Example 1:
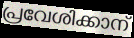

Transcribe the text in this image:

പ്രവേശിക്കാന്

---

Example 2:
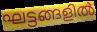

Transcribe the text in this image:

ഘട്ടങ്ങളിൽ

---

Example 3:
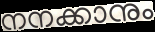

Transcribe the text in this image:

നനക്കാനും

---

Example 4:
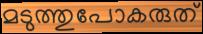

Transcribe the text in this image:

മടുത്തുപോകരുത്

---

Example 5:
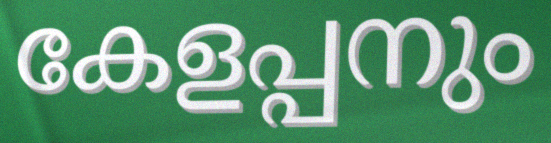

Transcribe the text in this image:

കേളപ്പനും